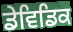
ਡੇਵਿਡਿਕ